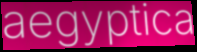
aegyptica